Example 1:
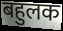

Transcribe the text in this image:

बहुलक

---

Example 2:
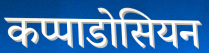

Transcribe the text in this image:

कप्पाडोसियन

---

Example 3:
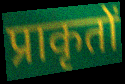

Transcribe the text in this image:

प्राकृतों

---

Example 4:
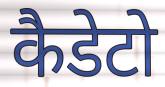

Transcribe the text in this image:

कैडेटो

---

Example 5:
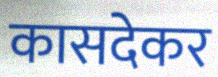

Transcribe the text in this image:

कासदेकर